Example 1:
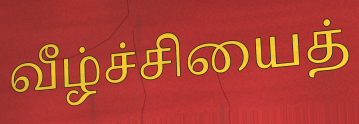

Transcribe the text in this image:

வீழ்ச்சியைத்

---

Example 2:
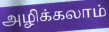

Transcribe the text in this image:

அழிக்கலாம்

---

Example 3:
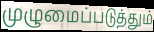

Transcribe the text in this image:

முழுமைப்படுத்தும்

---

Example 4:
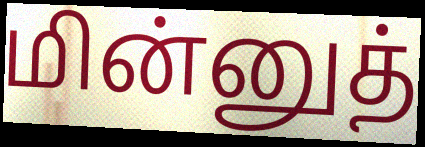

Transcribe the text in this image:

மின்னுத்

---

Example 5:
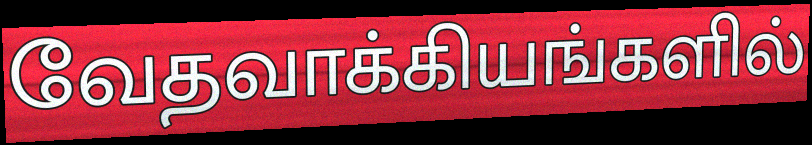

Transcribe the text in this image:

வேதவாக்கியங்களில்